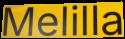
Melilla